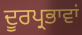
ਦੂਰਪ੍ਰਭਾਵਾਂ